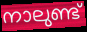
നാലുണ്ട്